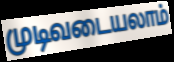
முடிவடையலாம்